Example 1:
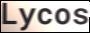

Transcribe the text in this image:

Lycos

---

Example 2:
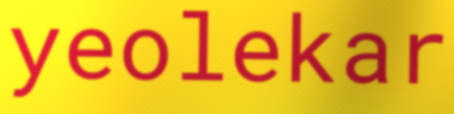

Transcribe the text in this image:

yeolekar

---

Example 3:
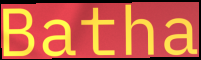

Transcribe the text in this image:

Batha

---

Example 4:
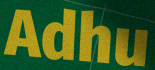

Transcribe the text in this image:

Adhu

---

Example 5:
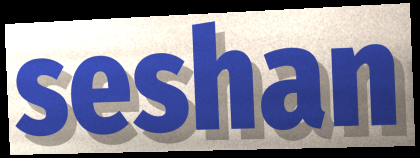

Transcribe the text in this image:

seshan